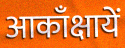
आकाँक्षायें